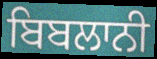
ਬਿਬਲਾਨੀ